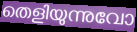
തെളിയുന്നുവോ